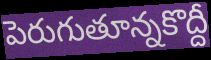
పెరుగుతూన్నకొద్దీ